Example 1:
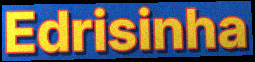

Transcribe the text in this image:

Edrisinha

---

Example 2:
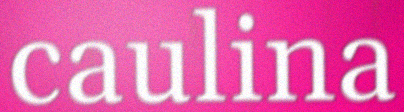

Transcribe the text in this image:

caulina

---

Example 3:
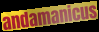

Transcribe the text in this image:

andamanicus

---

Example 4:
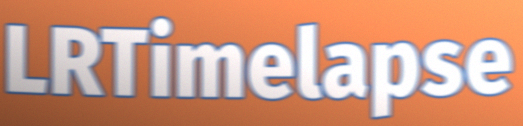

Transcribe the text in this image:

LRTimelapse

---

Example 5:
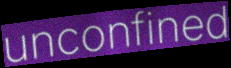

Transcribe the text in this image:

unconfined